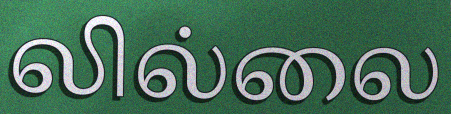
லில்லை